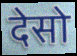
देसो